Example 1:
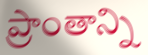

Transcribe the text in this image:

ప్రాంతాన్ని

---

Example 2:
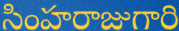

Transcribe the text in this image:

సింహరాజుగారి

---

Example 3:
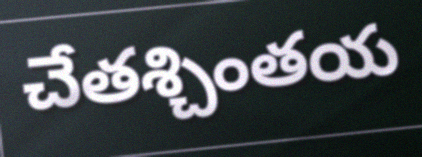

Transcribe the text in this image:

చేతశ్చింతయ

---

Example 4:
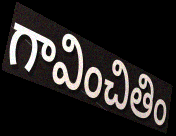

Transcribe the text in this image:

గావించితిం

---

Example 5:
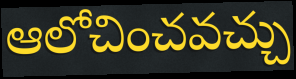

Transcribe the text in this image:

ఆలోచించవచ్చు